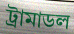
ট্রামাডল